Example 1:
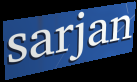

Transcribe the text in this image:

sarjan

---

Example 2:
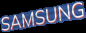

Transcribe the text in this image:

SAMSUNG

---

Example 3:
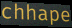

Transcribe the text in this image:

chhape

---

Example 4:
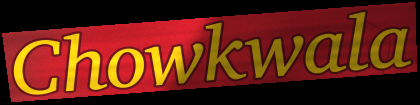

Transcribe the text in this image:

Chowkwala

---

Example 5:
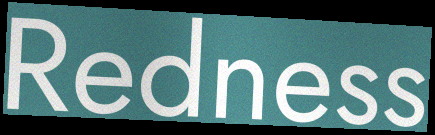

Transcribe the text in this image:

Redness